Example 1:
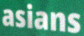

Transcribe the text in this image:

asians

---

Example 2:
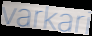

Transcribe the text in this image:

varkari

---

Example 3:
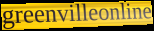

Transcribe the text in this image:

greenvilleonline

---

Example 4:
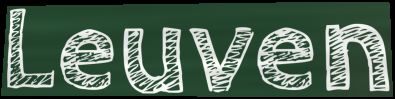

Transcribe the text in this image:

Leuven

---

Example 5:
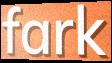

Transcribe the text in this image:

fark